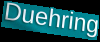
Duehring